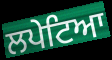
ਲਪੇਟਿਆ